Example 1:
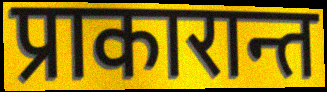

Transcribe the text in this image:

प्राकारान्त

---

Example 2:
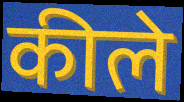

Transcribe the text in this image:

कीले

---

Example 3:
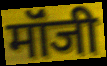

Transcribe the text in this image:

मॉंजी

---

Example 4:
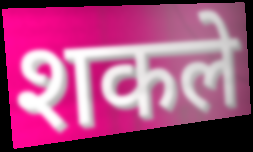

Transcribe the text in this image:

शकले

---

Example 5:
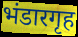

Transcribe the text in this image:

भंडारगृह